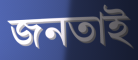
জনতাই